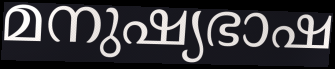
മനുഷ്യഭാഷ